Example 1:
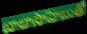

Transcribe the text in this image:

బాలాసాహెబుతో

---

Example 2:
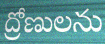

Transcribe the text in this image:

ద్రోణులను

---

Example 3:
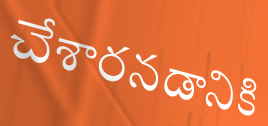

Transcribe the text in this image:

చేశారనడానికి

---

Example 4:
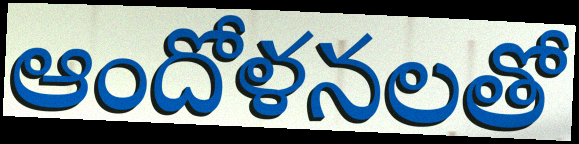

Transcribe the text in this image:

ఆందోళనలతో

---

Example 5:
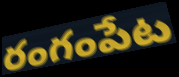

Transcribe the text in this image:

రంగంపేట